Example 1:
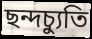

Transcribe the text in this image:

ছন্দচ্যুতি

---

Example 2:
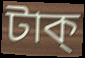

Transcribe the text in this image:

টাক্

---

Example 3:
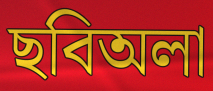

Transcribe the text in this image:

ছবিঅলা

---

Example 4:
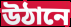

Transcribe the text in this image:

উঠানে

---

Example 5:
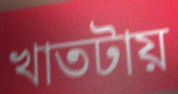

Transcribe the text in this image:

খাতটায়